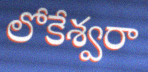
లోకేశ్వరా